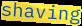
shaving